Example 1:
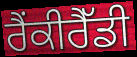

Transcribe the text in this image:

ਰੈਂਕੀਰੈੱਡੀ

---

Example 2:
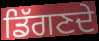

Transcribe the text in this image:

ਡਿੱਗਣਦੇ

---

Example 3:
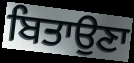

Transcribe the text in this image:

ਬਿਤਾਉਣਾ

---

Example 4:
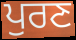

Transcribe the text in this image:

ਪੁਰਣ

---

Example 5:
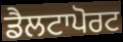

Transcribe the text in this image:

ਡੈਲਟਾਪੋਰਟ